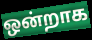
ஒன்றாக